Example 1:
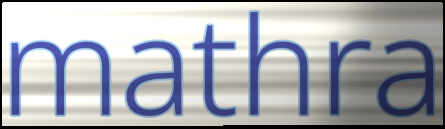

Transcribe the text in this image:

mathra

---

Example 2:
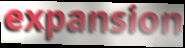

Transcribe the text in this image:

expansion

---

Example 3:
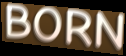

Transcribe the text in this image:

BORN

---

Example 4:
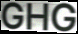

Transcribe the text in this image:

GHG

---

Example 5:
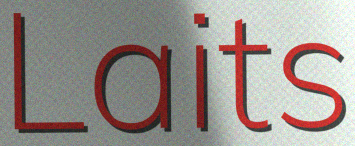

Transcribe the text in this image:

Laits